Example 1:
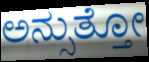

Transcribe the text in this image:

ಅನ್ಸುತ್ತೋ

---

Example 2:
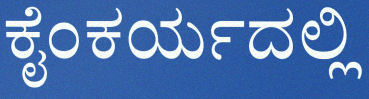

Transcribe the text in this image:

ಕೈಂಕರ್ಯದಲ್ಲಿ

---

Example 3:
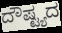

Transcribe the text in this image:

ದೌಷ್ಟ್ಯದ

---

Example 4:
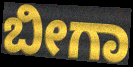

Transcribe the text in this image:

ಬೀಗಾ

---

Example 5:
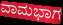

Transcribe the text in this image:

ವಾಮಭಾಗ